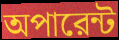
অপারেন্ট